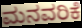
ಮನವರಿಕೆ